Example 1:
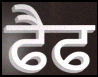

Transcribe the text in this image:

ਫੈਫ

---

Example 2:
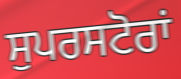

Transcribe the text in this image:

ਸੁਪਰਸਟੋਰਾਂ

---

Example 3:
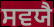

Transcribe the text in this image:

ਸਵਯੈ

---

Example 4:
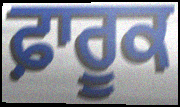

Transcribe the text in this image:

ਫ਼ਾਰੂਕ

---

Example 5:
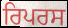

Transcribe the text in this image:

ਰਿਪਰਸ